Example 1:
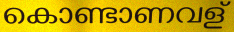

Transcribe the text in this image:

കൊണ്ടാണവള്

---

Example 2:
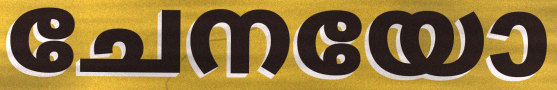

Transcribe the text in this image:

ചേനയോ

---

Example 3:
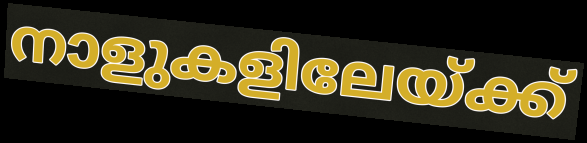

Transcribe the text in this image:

നാളുകളിലേയ്ക്ക്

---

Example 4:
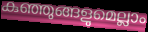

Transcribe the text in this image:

കുഞ്ഞുങ്ങളുമെല്ലാം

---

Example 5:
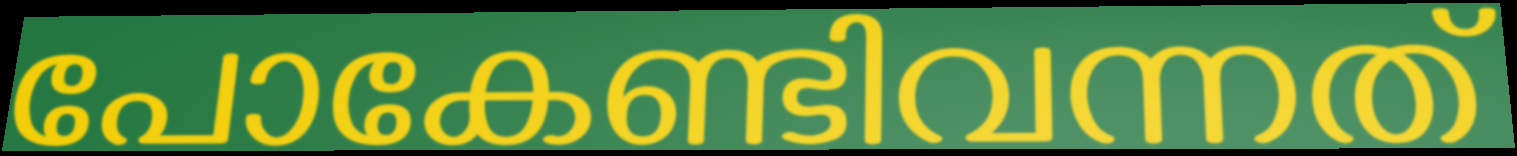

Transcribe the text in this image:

പോകേണ്ടിവന്നത്